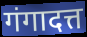
गंगादत्त